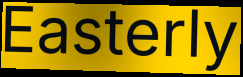
Easterly